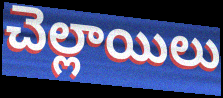
చెల్లాయిలు